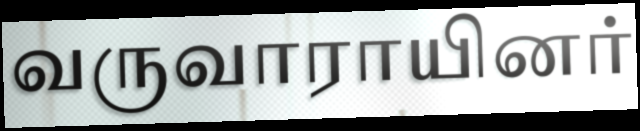
வருவாராயினர்